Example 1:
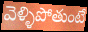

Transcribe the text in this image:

వెళ్ళిపోతుంటే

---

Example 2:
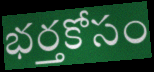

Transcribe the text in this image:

భర్తకోసం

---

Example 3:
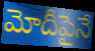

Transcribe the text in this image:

మోదీపైనే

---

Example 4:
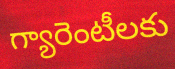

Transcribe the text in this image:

గ్యారెంటీలకు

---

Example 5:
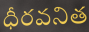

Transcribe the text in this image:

ధీరవనిత